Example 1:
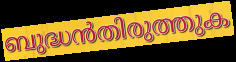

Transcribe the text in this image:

ബുദ്ധൻതിരുത്തുക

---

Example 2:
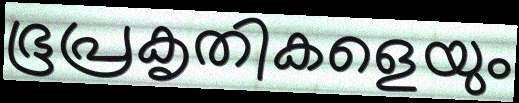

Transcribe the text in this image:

ഭൂപ്രകൃതികളെയും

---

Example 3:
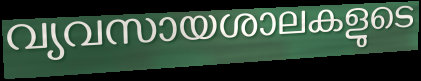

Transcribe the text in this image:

വ്യവസായശാലകളുടെ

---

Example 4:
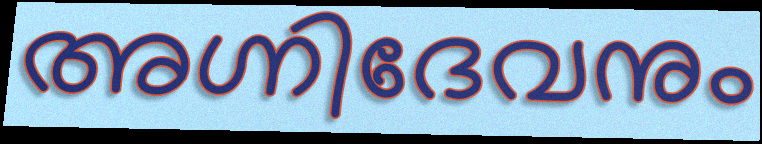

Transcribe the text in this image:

അഗ്നിദേവനും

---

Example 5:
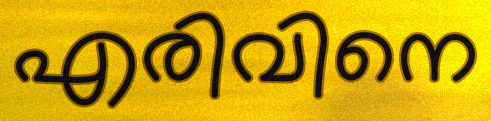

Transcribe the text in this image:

എരിവിനെ